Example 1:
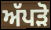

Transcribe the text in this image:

ਅੱਪੜੋ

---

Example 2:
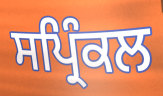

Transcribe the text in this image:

ਸਪ੍ਰਿੰਕਲ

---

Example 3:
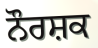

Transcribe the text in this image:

ਨੌਰਸ਼ਕ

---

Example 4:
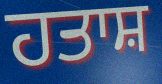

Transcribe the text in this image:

ਹਤਾਸ਼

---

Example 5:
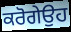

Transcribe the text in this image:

ਕਰੋਗੇਉਹ